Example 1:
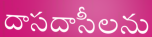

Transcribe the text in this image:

దాసదాసీలను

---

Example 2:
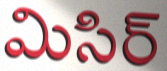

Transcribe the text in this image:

మిసిర్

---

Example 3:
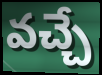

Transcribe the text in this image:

వచ్చే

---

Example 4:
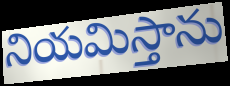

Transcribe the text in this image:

నియమిస్తాను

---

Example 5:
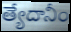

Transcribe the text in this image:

త్యేదానీం